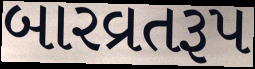
બારવ્રતરૂપ